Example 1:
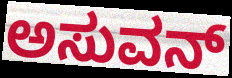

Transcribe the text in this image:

ಅಸುವನ್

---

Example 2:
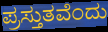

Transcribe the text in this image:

ಪ್ರಸ್ತುತವೆಂದು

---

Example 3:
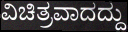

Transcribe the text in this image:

ವಿಚಿತ್ರವಾದದ್ದು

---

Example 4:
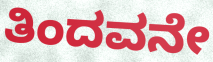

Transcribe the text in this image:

ತಿಂದವನೇ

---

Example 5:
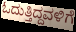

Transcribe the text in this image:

ಓದುತ್ತಿದ್ದವಳಿಗೆ